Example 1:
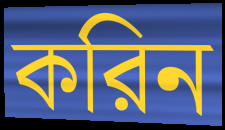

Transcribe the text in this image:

করিন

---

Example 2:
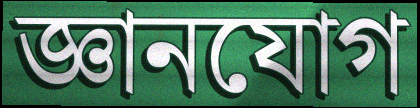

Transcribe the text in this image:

জ্ঞানযোগ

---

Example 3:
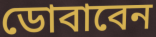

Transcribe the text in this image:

ডোবাবেন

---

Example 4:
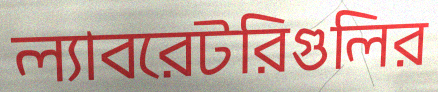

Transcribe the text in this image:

ল্যাবরেটরিগুলির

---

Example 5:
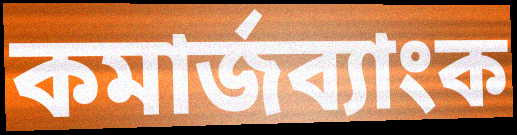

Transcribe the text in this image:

কমার্জব্যাংক